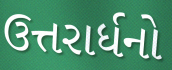
ઉત્તરાર્ધનો